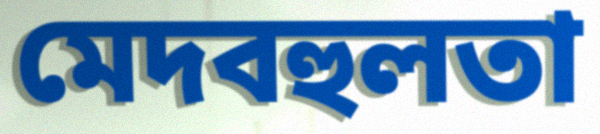
মেদবহুলতা